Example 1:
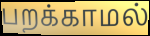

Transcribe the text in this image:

பறக்காமல்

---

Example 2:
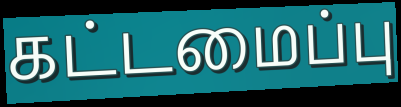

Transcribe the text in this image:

கட்டமைப்பு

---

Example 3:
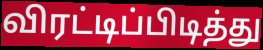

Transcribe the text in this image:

விரட்டிப்பிடித்து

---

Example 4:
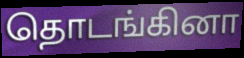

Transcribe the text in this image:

தொடங்கினா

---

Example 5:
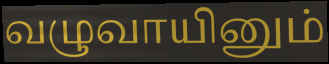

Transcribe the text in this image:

வழுவாயினும்